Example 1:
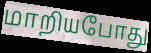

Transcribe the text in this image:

மாறியபோது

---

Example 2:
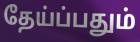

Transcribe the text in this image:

தேய்ப்பதும்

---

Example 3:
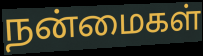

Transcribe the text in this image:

நன்மைகள்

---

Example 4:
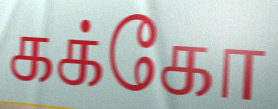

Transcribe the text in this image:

கக்கோ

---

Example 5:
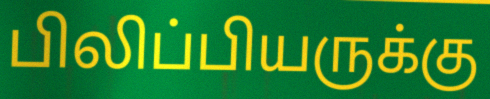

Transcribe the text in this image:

பிலிப்பியருக்கு